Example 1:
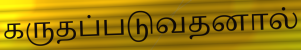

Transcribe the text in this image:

கருதப்படுவதனால்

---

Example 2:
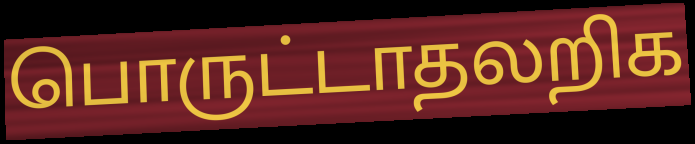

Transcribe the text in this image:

பொருட்டாதலறிக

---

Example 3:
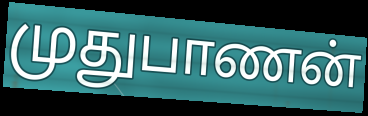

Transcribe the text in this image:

முதுபாணன்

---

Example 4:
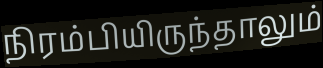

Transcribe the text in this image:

நிரம்பியிருந்தாலும்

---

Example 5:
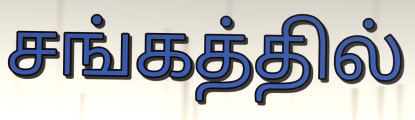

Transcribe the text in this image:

சங்கத்தில்